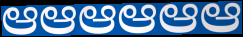
ఆఆఆఆఆఆ